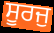
ਸੂਰਜੁ